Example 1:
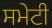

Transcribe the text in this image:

ਸਮੇਟੀ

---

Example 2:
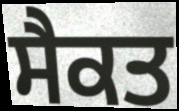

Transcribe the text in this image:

ਸੈਕਤ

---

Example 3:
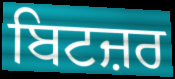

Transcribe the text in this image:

ਬਿਟਜ਼ਰ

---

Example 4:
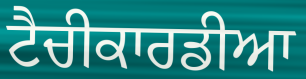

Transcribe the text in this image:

ਟੈਚੀਕਾਰਡੀਆ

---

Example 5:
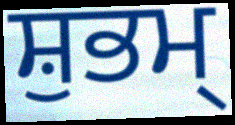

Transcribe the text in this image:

ਸ਼ੁਭਮ੍